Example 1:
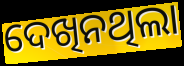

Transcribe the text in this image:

ଦେଖିନଥିଲା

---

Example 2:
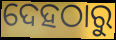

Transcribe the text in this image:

ଦେହଠାରୁ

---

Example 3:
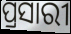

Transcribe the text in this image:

ପ୍ରସାରୀ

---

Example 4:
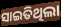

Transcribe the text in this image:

ସାଇତିଥିଲା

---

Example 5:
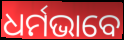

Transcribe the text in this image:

ଧର୍ମଭାବେ